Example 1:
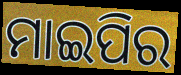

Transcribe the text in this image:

ମାଇପିର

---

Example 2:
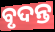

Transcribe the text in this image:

ବୃଦନ୍ତ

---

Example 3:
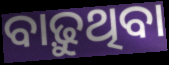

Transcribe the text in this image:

ବାଢ଼ୁଥିବା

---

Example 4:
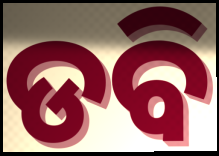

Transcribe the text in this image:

ଡବି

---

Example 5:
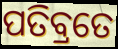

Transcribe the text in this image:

ପତିବ୍ରତେ